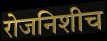
रोजनिशीच